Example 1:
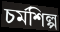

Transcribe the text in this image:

চর্মশিল্প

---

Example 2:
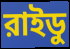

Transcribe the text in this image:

রাইডু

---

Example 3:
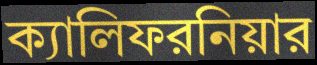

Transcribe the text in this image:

ক্যালিফরনিয়ার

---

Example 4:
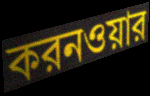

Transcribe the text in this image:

করনওয়ার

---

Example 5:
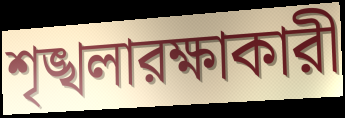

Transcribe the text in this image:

শৃঙ্খলারক্ষাকারী